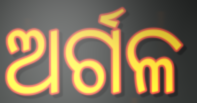
ଅର୍ଗଳ